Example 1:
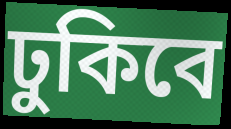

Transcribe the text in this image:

ঢুকিবে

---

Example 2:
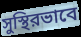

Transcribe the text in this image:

সুস্থিরভাবে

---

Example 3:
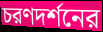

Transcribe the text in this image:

চরণদর্শনের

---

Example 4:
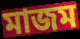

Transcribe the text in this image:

মাজম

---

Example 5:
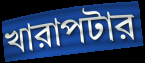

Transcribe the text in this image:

খারাপটার